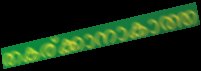
തകര്ക്കാനാകാത്ത